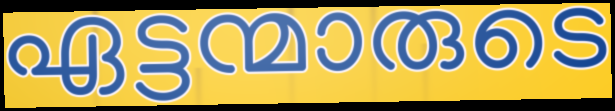
ഏട്ടന്മാരുടെ